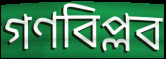
গণবিপ্লব